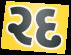
રદ